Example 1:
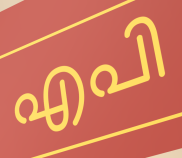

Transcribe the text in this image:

എപി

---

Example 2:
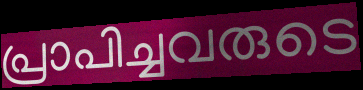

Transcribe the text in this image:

പ്രാപിച്ചവരുടെ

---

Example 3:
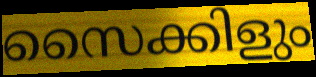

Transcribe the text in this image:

സൈക്കിളും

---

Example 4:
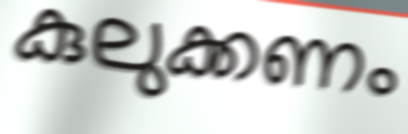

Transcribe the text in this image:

കുലുക്കണം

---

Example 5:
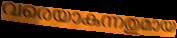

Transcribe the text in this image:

വരെയാകുന്നതുമായ